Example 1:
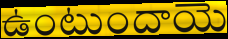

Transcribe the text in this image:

ఉంటుందాయె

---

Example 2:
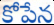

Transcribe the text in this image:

కోపేన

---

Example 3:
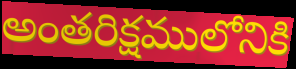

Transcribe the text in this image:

అంతరిక్షములోనికి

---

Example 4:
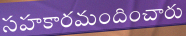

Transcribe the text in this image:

సహకారమందించారు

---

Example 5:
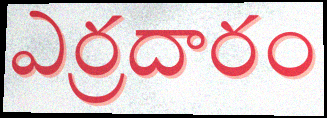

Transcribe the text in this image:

ఎర్రదారం